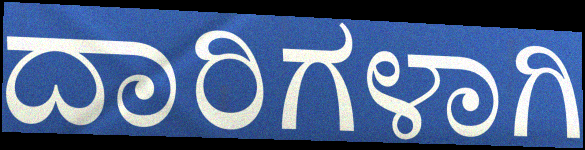
ದಾರಿಗಳಾಗಿ